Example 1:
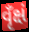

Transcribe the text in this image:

વૃઁક્ષં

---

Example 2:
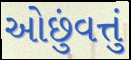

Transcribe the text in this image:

ઓછુંવત્તું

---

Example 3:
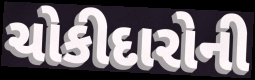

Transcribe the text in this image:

ચોકીદારોની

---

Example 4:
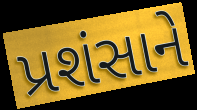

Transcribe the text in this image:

પ્રશંસાને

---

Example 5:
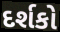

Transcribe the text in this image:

દર્શકો